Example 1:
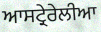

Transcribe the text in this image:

ਆਸਟ੍ਰੇਰੇਲੀਆ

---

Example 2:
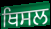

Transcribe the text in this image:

ਥਿਸਲ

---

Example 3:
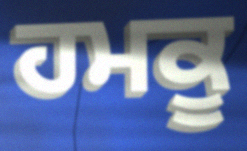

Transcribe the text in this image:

ਹਮਕੂ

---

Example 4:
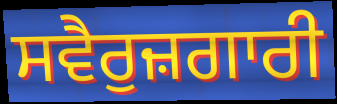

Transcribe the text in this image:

ਸਵੈਰੁਜ਼ਗਾਰੀ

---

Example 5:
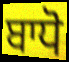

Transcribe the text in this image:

ਬਾਧੋ